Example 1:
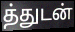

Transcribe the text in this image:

த்துடன்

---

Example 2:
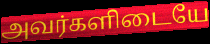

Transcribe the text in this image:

அவர்களிடையே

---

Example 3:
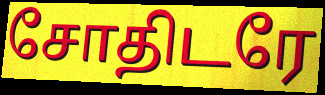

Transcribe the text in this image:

சோதிடரே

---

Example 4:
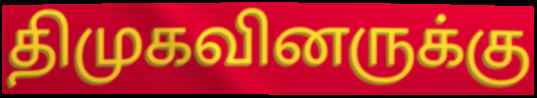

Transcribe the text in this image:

திமுகவினருக்கு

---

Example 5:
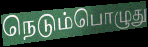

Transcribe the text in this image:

நெடும்பொழுது